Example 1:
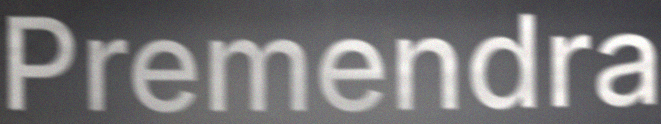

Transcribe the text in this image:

Premendra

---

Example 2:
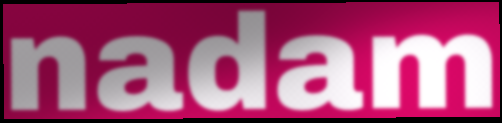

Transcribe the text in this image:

nadam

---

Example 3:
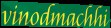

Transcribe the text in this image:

vinodmachhi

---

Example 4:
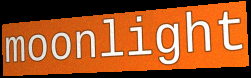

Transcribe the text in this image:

moonlight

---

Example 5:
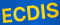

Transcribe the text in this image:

ECDIS